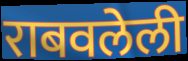
राबवलेली